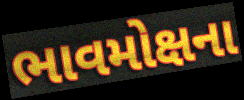
ભાવમોક્ષના